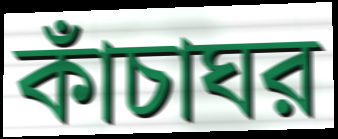
কাঁচাঘর